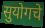
सुयोगचे